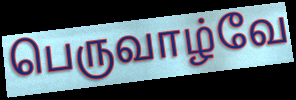
பெருவாழ்வே